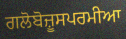
ਗਲੋਬੋਜ਼ੂਸਪਰਮੀਆ